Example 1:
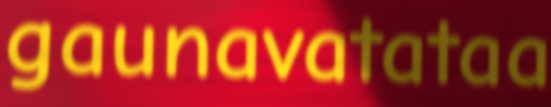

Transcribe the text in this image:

gaunavatataa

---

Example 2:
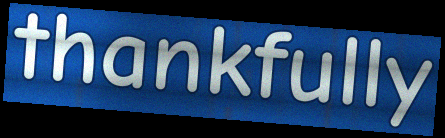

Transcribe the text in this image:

thankfully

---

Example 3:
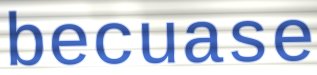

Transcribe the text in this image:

becuase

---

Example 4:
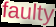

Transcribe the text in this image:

faulty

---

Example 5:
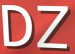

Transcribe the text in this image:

DZ